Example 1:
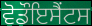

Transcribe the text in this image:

ਵੋਡੌਇਸੈਂਟਸ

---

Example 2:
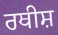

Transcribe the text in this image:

ਰਥੀਸ਼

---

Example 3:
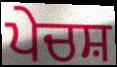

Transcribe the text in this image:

ਪੇਚਸ਼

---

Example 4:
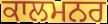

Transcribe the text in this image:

ਕਾਲਮਨਰ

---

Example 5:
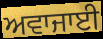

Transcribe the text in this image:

ਅਵਾਜਾਈ